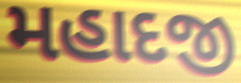
મહાદજી